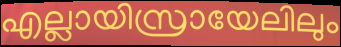
എല്ലായിസ്രായേലിലും